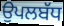
ਉਪਲਬੱਧ